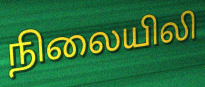
நிலையிலி